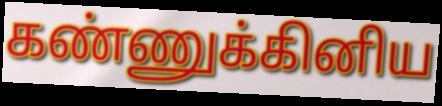
கண்ணுக்கினிய